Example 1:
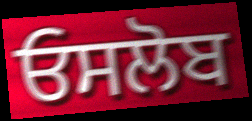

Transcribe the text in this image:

ਓਸਲੋਬ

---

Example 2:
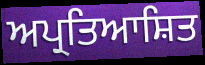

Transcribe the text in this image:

ਅਪ੍ਰਤਿਆਸ਼ਿਤ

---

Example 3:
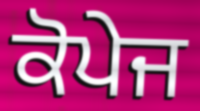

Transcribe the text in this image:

ਕੋਪੇਜ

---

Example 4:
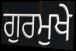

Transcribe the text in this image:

ਗੁਰਮੁਖੇ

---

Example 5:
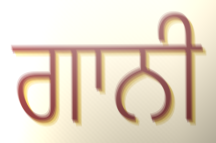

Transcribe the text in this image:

ਗਾਨੀ